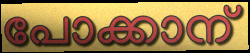
പോക്കാന്